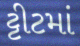
ટ્ટીટમાં